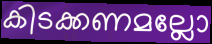
കിടക്കണമല്ലോ